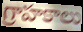
గ్రాహకాలు